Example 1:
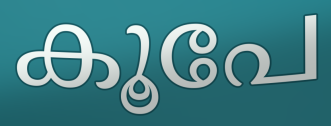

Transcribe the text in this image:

കൂപേ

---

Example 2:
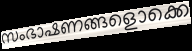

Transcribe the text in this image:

സംഭാഷണങ്ങളൊക്കെ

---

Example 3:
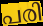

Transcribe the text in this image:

പരി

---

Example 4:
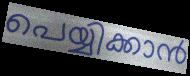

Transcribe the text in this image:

പെയ്യിക്കാൻ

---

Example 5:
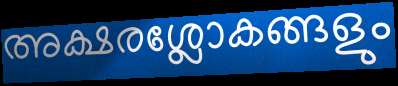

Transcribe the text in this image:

അക്ഷരശ്ലോകങ്ങളും